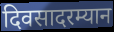
दिवसादरम्यान